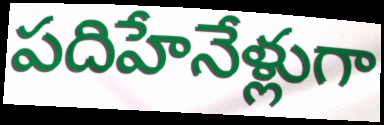
పదిహేనేళ్లుగా